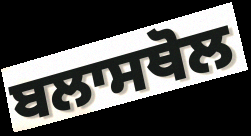
ਬਲਾਸਥੋਲ